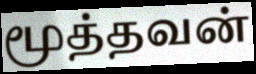
மூத்தவன்